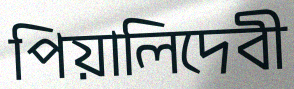
পিয়ালিদেবী